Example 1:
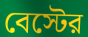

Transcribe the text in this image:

বেস্টের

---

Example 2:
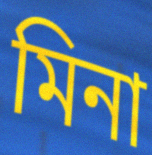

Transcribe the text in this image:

মিনা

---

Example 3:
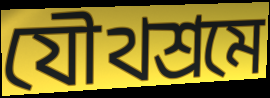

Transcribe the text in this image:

যৌথশ্রমে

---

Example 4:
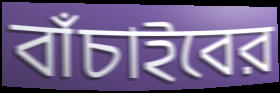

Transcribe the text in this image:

বাঁচাইবের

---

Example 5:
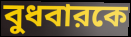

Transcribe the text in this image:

বুধবারকে